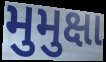
મુમુક્ષા